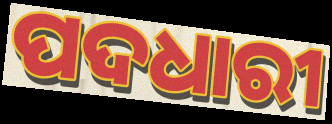
ପଦଧାରୀ